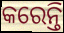
କରେନ୍ତି